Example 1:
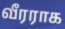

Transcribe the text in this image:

வீரராக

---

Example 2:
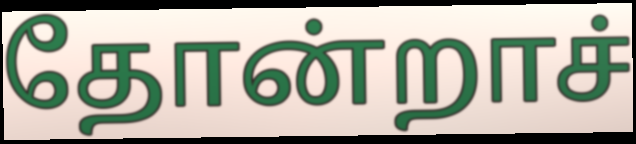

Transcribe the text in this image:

தோன்றாச்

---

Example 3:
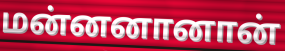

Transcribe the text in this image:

மன்னனானான்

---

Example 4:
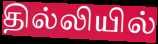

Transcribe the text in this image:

தில்லியில்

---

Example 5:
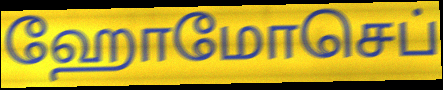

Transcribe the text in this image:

ஹோமோசெப்